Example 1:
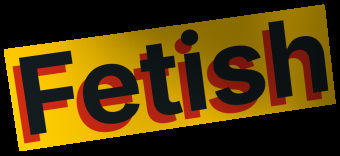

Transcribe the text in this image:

Fetish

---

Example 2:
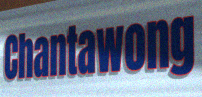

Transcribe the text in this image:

Chantawong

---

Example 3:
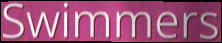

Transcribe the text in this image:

Swimmers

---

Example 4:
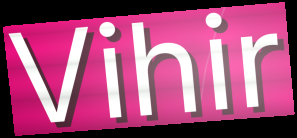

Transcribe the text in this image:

Vihir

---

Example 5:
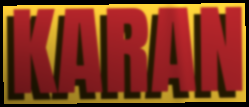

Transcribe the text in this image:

KARAN